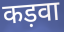
कड़वा